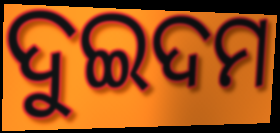
ଦୁଇଦମ